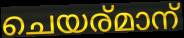
ചെയര്മാന്